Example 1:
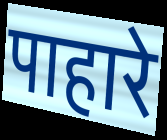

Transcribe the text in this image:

पाहारे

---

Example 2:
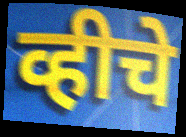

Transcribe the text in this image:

व्हीचे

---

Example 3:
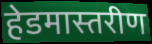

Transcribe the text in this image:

हेडमास्तरीण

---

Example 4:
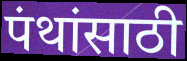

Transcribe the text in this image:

पंथांसाठी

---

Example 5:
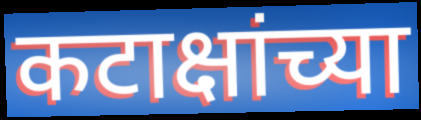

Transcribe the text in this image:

कटाक्षांच्या